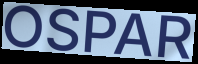
OSPAR